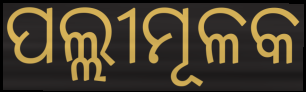
ପଲ୍ଲୀମୂଳକ